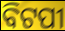
ବିଟପୀ